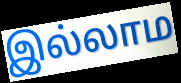
இல்லாம